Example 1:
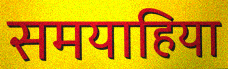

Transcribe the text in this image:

समयाहिया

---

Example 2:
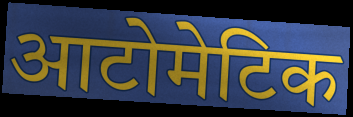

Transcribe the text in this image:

आटोमेटिक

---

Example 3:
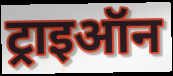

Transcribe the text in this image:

ट्राइऑन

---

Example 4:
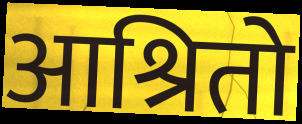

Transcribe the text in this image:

आश्रितो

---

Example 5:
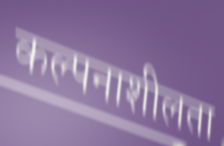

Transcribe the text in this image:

कल्पनाशीलता